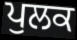
ਪੁਲਕ